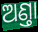
ଅଣ୍ତା